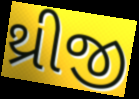
થ્રીજી